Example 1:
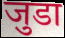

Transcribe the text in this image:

जुडा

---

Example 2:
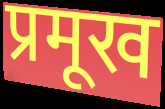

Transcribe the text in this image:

प्रमूख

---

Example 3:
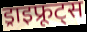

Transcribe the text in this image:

ड्राइफ्रूट्स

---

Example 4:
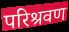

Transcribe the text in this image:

परिश्रवण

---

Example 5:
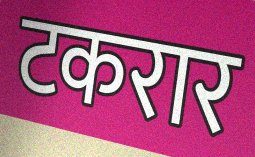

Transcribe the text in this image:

टकरार